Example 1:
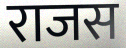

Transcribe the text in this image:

राजस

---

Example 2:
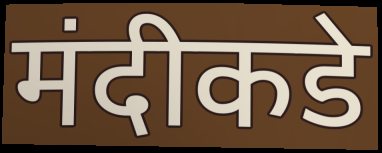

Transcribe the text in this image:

मंदीकडे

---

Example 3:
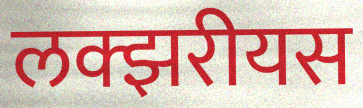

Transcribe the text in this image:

लक्झरीयस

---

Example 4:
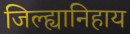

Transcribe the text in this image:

जिल्ह्यानिहाय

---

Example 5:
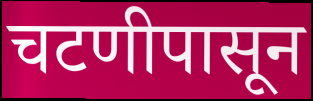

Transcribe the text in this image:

चटणीपासून